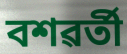
বশৱৰ্তী